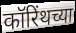
कॉरिंथच्या